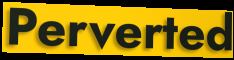
Perverted